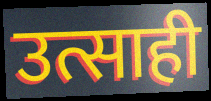
उत्साही